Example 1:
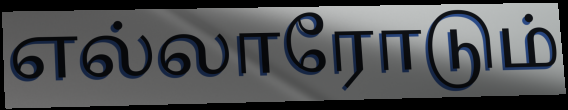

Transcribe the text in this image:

எல்லாரோடும்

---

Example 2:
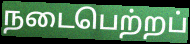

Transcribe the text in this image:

நடைபெற்றப்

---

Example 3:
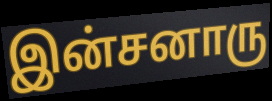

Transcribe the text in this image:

இன்சனாரு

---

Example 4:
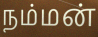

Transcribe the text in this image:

நம்மன்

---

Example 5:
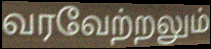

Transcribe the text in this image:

வரவேற்றலும்